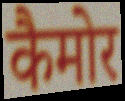
कैमोर